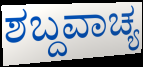
ಶಬ್ದವಾಚ್ಯ